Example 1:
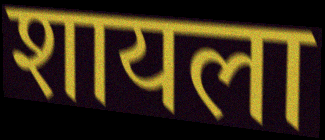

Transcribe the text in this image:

शायला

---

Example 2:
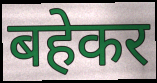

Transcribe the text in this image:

बहेकर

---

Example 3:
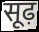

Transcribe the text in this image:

सूढ़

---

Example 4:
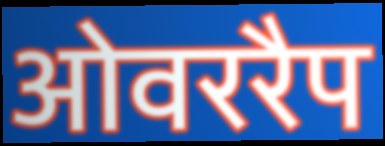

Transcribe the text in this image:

ओवररैप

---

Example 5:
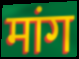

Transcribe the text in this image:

मांग